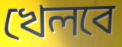
খেলবে